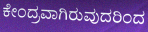
ಕೇಂದ್ರವಾಗಿರುವುದರಿಂದ